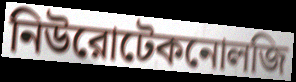
নিউরোটেকনোলজি